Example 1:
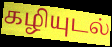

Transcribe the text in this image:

கழியுடல்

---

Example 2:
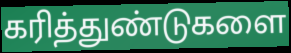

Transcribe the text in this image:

கரித்துண்டுகளை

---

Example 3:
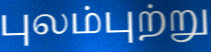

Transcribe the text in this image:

புலம்புற்று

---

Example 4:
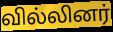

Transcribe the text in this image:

வில்லினர்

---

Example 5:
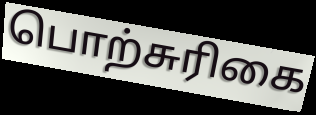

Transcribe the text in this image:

பொற்சுரிகை